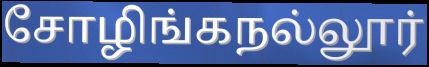
சோழிங்கநல்லூர்